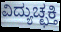
ವಿದ್ಯುಚ್ಛಕ್ತಿ